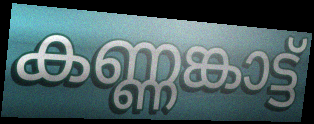
കണ്ണങ്കാട്ട്